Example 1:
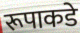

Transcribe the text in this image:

रूपाकडे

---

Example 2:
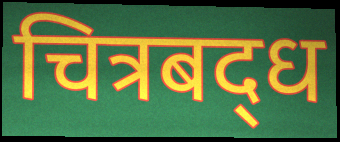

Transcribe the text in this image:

चित्रबद्ध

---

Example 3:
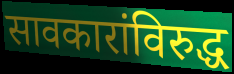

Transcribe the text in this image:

सावकारांविरुद्ध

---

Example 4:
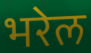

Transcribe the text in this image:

भरेल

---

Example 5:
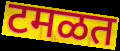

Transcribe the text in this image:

टमळत